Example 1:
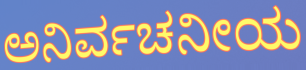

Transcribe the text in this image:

ಅನಿರ್ವಚನೀಯ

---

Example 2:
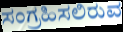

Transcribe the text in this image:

ಸಂಗ್ರಹಿಸಲಿರುವ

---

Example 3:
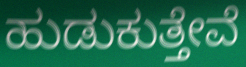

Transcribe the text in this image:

ಹುಡುಕುತ್ತೇವೆ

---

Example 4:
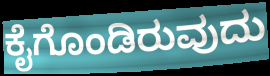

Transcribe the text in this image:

ಕೈಗೊಂಡಿರುವುದು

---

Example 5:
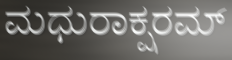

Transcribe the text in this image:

ಮಧುರಾಕ್ಷರಮ್